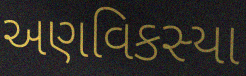
અણવિકસ્યા